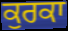
ਕੁਰਕਾ